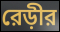
রেড়ীর